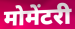
मोमेंटरी